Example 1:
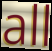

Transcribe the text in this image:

all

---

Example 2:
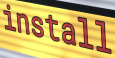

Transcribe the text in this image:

install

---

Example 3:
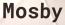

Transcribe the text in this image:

Mosby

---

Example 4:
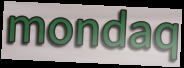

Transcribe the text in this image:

mondaq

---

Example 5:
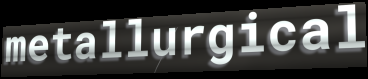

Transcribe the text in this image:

metallurgical